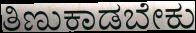
ತಿಣುಕಾಡಬೇಕು